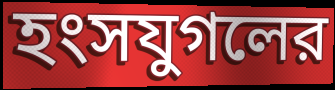
হংসযুগলের